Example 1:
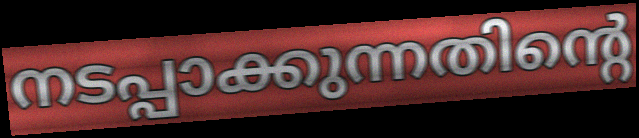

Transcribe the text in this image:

നടപ്പാക്കുന്നതിന്റെ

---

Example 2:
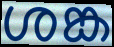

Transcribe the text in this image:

ശങ്ക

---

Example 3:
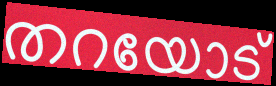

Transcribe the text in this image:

തറയോട്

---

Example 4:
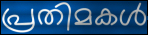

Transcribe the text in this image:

പ്രതിമകൾ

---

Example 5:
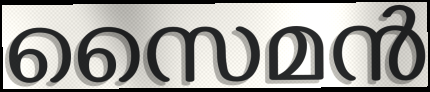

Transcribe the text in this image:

സൈമൻ